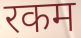
रकम